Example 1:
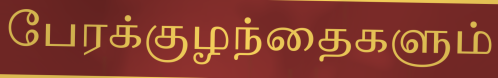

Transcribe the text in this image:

பேரக்குழந்தைகளும்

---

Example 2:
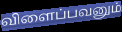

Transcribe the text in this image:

விளைப்பவனும்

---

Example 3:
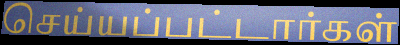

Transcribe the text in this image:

செய்யப்பட்டார்கள்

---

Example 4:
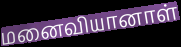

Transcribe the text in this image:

மனைவியானாள்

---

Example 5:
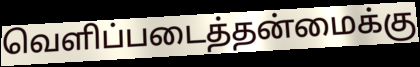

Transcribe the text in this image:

வெளிப்படைத்தன்மைக்கு